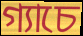
গ্যাচে